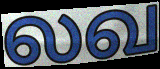
லவ